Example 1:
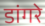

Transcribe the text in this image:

डांगरे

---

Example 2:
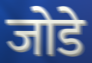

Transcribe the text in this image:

जोडे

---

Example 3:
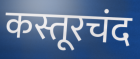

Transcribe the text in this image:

कस्तूरचंद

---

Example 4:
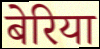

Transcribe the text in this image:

बेरिया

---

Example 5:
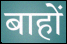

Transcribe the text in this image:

बाहों